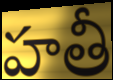
హతీ